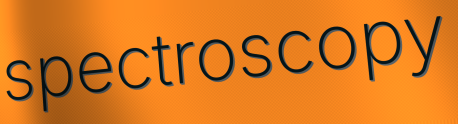
spectroscopy